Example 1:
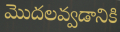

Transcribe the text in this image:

మొదలవ్వడానికి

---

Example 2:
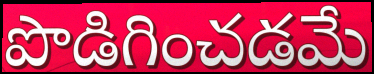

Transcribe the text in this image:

పొడిగించడమే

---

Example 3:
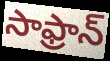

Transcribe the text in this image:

సాఫ్రాన్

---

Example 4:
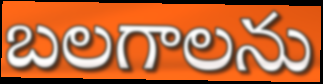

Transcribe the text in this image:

బలగాలను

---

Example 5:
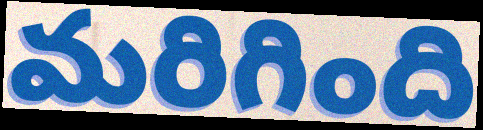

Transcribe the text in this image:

మరిగింది